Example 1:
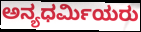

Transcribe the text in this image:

ಅನ್ಯಧರ್ಮಿಯರು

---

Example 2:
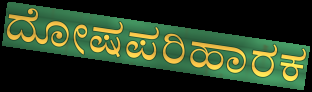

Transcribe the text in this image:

ದೋಷಪರಿಹಾರಕ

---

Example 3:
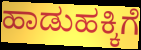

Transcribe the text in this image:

ಹಾಡುಹಕ್ಕಿಗೆ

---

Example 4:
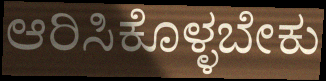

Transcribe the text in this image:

ಆರಿಸಿಕೊಳ್ಳಬೇಕು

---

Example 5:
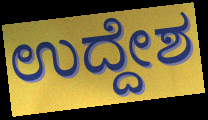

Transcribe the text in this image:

ಉದ್ದೇಶ